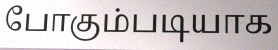
போகும்படியாக